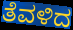
ತೆವಳಿದ